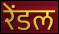
रेंडल